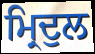
ਮ੍ਰਿਦੁਲ